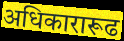
अधिकारारूढ